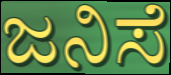
ಜನಿಸೆ